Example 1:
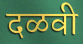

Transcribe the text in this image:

दळवी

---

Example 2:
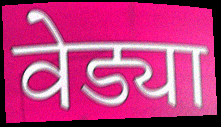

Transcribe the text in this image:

वेड्या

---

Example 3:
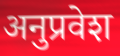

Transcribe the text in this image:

अनुप्रवेश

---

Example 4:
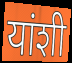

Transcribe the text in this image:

यांशी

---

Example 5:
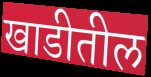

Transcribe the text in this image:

खाडीतील